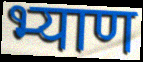
भ्याण